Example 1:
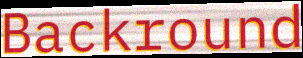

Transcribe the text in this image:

Backround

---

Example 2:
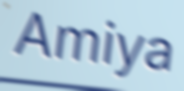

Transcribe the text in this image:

Amiya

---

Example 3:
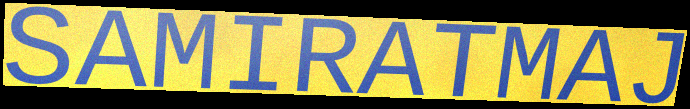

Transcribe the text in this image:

SAMIRATMAJ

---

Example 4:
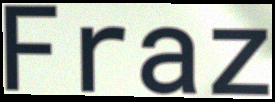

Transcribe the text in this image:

Fraz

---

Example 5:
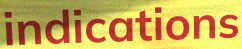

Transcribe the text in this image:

indications